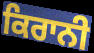
ਕਿਰਾਨੀ